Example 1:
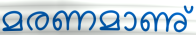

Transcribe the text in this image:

മരണമാണു്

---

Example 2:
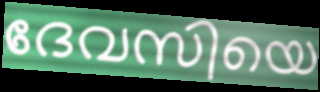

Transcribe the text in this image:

ദേവസിയെ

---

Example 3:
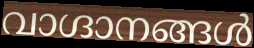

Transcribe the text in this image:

വാഗ്ദാനങ്ങൾ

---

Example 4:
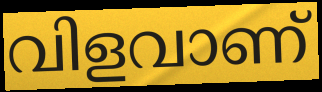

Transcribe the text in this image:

വിളവാണ്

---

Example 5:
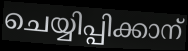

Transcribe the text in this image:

ചെയ്യിപ്പിക്കാന്